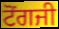
ਟੋਂਗਜੀ